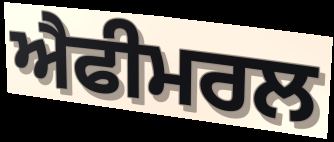
ਐਫੀਮਰਲ